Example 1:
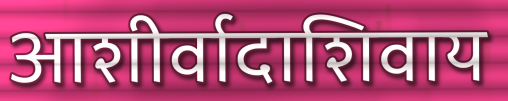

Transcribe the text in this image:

आशीर्वादाशिवाय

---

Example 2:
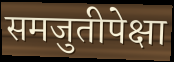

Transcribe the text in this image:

समजुतीपेक्षा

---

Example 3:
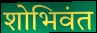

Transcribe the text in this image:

शोभिवंत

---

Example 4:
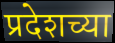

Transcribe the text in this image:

प्रदेशच्या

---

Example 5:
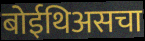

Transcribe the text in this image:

बोईथिअसचा